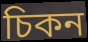
চিকন